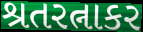
શ્રતરત્નાકર